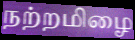
நற்றமிழை